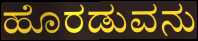
ಹೊರಡುವನು